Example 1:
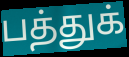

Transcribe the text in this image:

பத்துக்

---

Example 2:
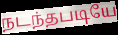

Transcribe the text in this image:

நடந்தபடியே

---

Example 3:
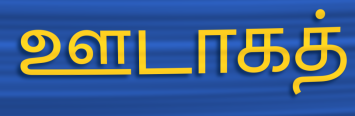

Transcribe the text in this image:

ஊடாகத்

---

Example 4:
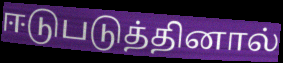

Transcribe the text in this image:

ஈடுபடுத்தினால்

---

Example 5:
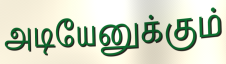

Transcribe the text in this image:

அடியேனுக்கும்